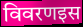
विवरणइस